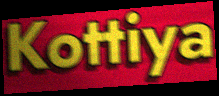
Kottiya